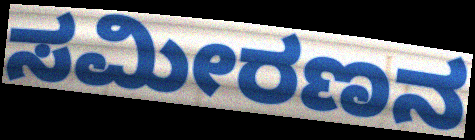
ಸಮೀರಣನ